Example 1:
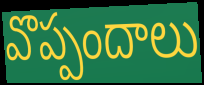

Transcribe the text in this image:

వొప్పందాలు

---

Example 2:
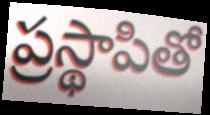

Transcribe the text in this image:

ప్రస్థాపితో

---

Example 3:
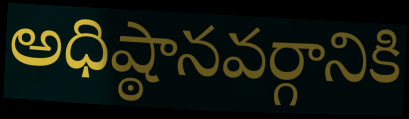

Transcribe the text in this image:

అధిష్ఠానవర్గానికి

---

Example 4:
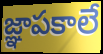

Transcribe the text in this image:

జ్ఞాపకాలే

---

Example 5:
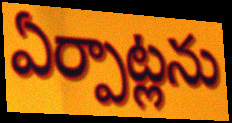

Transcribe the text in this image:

ఏర్పాట్లను